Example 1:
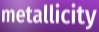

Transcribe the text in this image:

metallicity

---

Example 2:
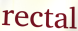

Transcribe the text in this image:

rectal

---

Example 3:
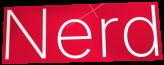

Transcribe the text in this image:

Nerd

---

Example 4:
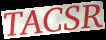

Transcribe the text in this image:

TACSR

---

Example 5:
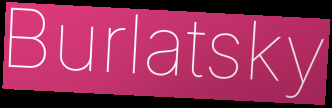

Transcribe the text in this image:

Burlatsky